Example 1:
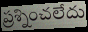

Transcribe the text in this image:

ప్రశ్నించలేదు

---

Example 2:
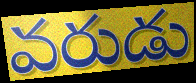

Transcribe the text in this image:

వరుడు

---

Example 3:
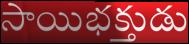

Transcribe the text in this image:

సాయిభక్తుడు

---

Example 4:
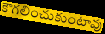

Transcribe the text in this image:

కౌగలించుకుంటావు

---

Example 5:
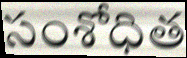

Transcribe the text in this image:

సంశోధిత